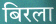
बिरला